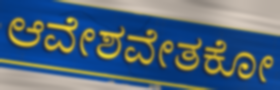
ಆವೇಶವೇತಕೋ